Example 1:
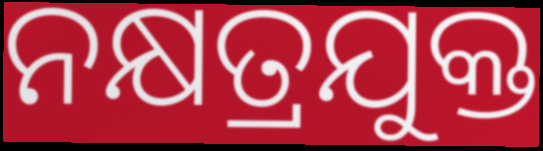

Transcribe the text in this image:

ନକ୍ଷତ୍ରଯୁକ୍ତ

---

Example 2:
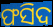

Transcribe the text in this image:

ଫସିଦ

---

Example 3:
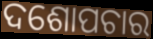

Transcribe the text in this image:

ଦଶୋପଚାର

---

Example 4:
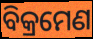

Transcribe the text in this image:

ବିକ୍ରମେଣ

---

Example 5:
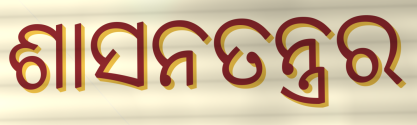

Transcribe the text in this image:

ଶାସନତନ୍ତ୍ରର